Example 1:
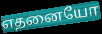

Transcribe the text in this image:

எதனையோ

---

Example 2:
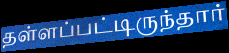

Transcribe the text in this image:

தள்ளப்பட்டிருந்தார்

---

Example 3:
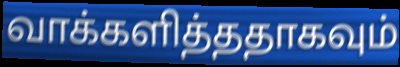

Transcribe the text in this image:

வாக்களித்ததாகவும்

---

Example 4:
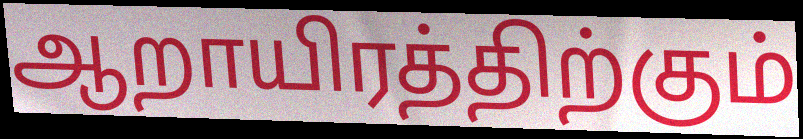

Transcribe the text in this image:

ஆறாயிரத்திற்கும்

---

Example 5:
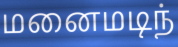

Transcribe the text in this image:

மனைமடிந்